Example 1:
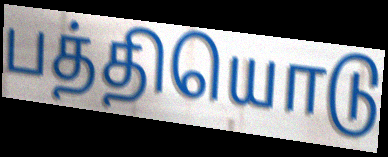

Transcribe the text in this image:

பத்தியொடு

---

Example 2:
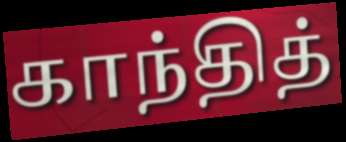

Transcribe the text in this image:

காந்தித்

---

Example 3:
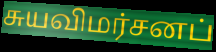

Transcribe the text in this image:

சுயவிமர்சனப்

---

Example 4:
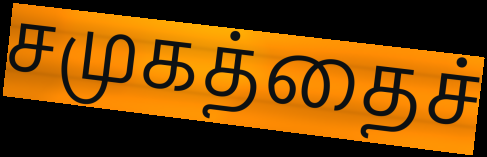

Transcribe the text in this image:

சமுகத்தைச்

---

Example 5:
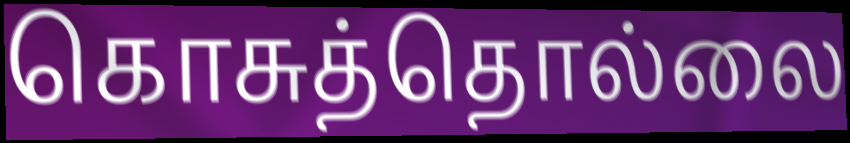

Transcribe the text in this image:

கொசுத்தொல்லை